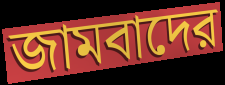
জামবাদের